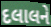
દલાલને